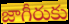
జాగీరుకు